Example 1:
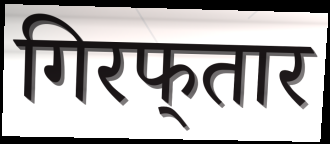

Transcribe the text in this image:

गिरफ्‌तार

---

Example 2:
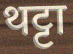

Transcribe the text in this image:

थट्टा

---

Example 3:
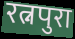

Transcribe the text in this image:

रत्नपुरा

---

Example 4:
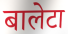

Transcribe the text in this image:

बालेटा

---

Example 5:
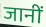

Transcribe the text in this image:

जानीं